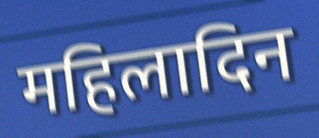
महिलादिन